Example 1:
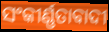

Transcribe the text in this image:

ସଂକୀର୍ଣ୍ଣତାବାଦୀ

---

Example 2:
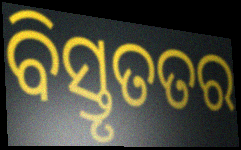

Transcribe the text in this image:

ବିସ୍ତୃତତର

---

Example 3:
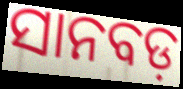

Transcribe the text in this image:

ସାନବଡ଼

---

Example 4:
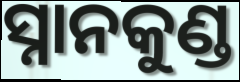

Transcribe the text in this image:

ସ୍ନାନକୁଣ୍ଡ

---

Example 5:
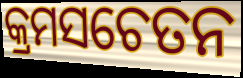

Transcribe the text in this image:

କ୍ରମସଚେତନ